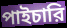
পাইচারি